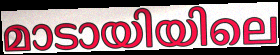
മാടായിയിലെ